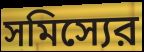
সমিস্যের